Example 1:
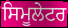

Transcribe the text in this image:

ਸਿਮੂਲੇਟਰ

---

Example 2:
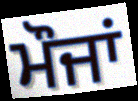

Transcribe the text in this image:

ਮੌਜਾਂ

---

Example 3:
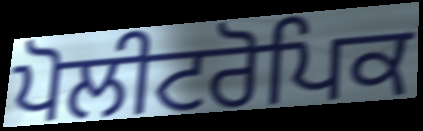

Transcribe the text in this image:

ਪੋਲੀਟਰੋਪਿਕ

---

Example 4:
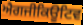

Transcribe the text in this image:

ਐਗਜੀਕਿਊਟਿਵ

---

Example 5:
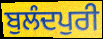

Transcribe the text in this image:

ਬੁਲੰਦਪੁਰੀ